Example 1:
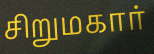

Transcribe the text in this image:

சிறுமகார்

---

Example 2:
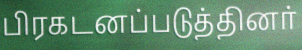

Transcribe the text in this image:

பிரகடனப்படுத்தினர்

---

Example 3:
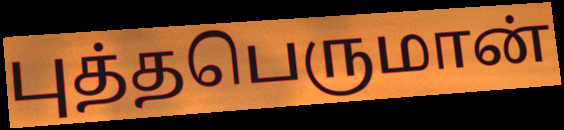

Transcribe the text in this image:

புத்தபெருமான்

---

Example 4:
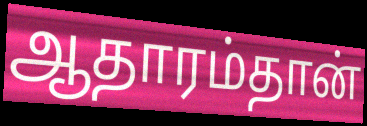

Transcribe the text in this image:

ஆதாரம்தான்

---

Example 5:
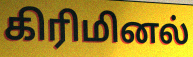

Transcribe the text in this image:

கிரிமினல்